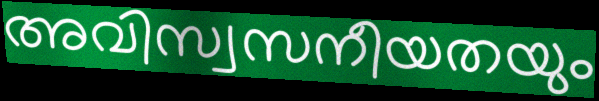
അവിസ്വസനീയതയും